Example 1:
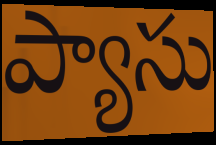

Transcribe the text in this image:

ప్యాసు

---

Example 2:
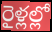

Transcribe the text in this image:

రైళ్లల్లో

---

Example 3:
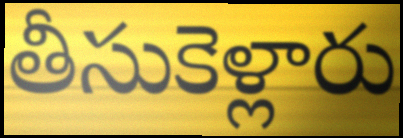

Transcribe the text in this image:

తీసుకెళ్లారు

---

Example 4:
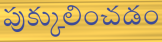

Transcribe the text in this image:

పుక్కులించడం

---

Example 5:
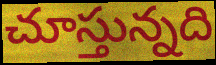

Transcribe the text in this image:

చూస్తున్నది